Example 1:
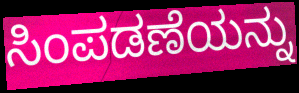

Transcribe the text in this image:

ಸಿಂಪಡಣೆಯನ್ನು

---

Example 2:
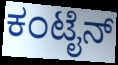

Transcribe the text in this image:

ಕಂಟೈನ್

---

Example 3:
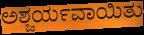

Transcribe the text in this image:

ಅಶ್ಚರ್ಯವಾಯಿತು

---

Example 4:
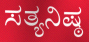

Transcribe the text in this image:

ಸತ್ಯನಿಷ್ಠ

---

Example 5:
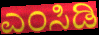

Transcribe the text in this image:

ಎಂಸಿಡಿ